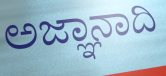
ಅಜ್ಞಾನಾದಿ